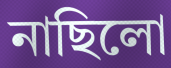
নাছিলো